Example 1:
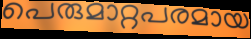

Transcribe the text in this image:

പെരുമാറ്റപരമായ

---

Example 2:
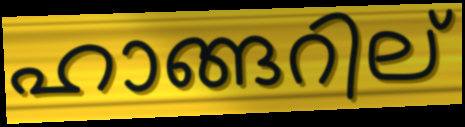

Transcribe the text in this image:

ഹാങ്ങറില്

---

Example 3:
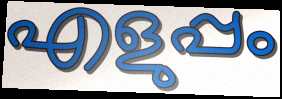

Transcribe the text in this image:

എളുപ്പം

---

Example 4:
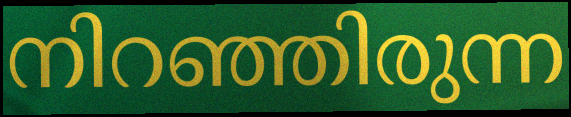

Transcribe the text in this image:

നിറഞ്ഞിരുന്ന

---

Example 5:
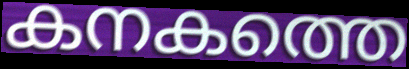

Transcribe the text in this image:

കനകത്തെ